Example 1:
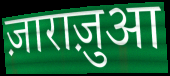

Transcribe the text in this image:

ज़ाराज़ुआ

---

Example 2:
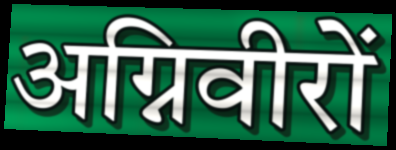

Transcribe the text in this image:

अग्निवीरों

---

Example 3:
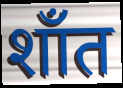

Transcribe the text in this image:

शाँत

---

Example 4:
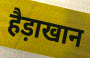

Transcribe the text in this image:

हैड़ाखान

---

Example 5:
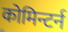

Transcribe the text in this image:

कोमिन्टर्न